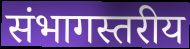
संभागस्तरीय